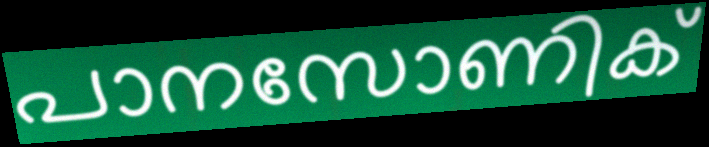
പാനസോണിക്